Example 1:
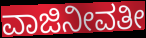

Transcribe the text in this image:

ವಾಜಿನೀವತೀ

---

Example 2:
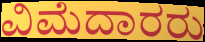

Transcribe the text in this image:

ವಿಮೆದಾರರು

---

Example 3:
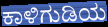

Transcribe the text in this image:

ಕಾಳಿಗುಡಿಯ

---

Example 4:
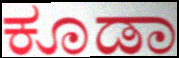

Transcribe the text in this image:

ಕೂಡಾ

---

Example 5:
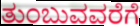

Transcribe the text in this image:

ತುಂಬುವವರೆಗೆ